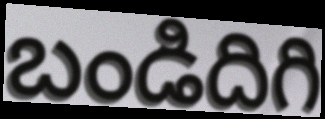
బండిదిగి